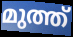
മുത്ത്